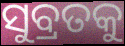
ସୁବ୍ରତକୁ